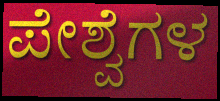
ಪೇಶ್ವೆಗಳ